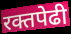
रक्तपेढी